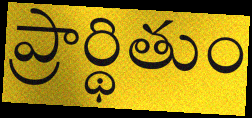
ప్రార్థితుం